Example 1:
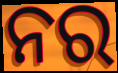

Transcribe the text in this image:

ନର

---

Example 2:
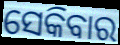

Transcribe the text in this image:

ସେକିବାର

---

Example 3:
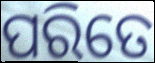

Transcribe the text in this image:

ପରିତେ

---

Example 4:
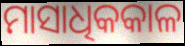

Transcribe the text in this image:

ମାସାଧିକକାଳ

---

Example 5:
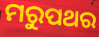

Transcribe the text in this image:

ମରୁପଥର